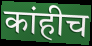
कांहीच